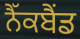
ਨੈੱਕਬੈਂਡ